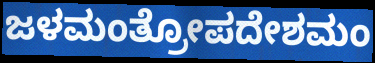
ಜಳಮಂತ್ರೋಪದೇಶಮಂ